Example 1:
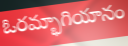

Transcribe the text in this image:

ఓరమ్భాగియానం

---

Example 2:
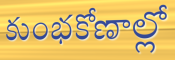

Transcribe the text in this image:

కుంభకోణాల్లో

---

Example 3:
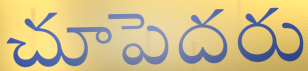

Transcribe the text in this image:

చూపెదరు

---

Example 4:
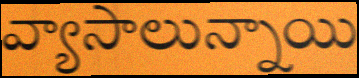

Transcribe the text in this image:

వ్యాసాలున్నాయి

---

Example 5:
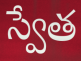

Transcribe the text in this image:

స్వేత